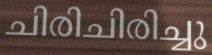
ചിരിചിരിച്ചു